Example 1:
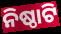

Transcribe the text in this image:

ନିଷ୍ଠାଟି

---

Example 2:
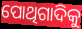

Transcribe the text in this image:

ପୋଥିଗାଦିକୁ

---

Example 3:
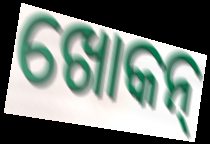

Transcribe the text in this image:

ଖୋକନ୍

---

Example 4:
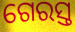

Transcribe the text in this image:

ଗେରସ୍ତ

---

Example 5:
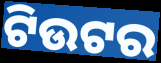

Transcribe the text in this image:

ଟିଉଟର